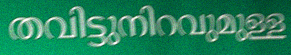
തവിട്ടുനിറവുമുള്ള